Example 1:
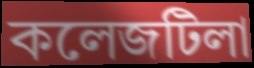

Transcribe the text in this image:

কলেজটিলা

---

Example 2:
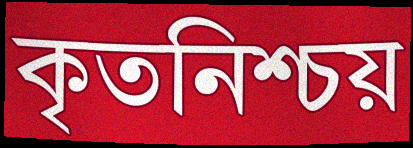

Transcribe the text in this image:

কৃতনিশ্চয়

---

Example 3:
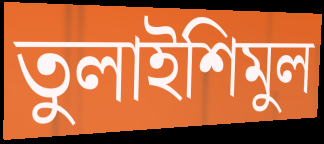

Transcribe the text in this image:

তুলাইশিমুল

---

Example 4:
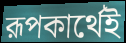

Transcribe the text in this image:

রূপকার্থেই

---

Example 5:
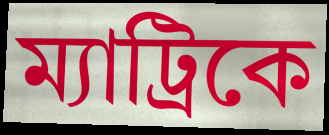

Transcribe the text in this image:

ম্যাট্রিকে